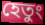
হেতুং